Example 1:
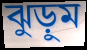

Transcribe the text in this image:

ঝুড়ুম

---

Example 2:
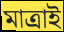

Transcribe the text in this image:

মাত্রাই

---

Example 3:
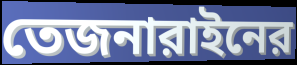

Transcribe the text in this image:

তেজনারাইনের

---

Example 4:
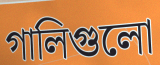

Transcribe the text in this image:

গালিগুলো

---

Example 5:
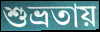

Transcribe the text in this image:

শুভ্রতায়